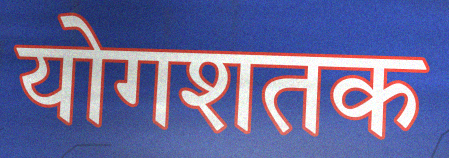
योगशतक